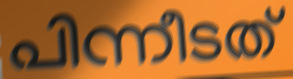
പിന്നീടത്